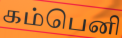
கம்பெனி